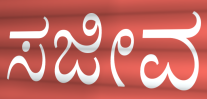
ಸಜೀವ